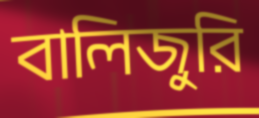
বালিজুরি